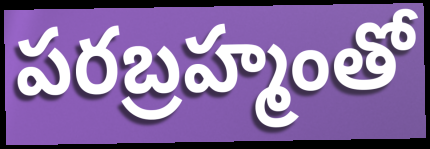
పరబ్రహ్మంతో